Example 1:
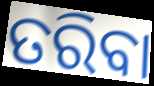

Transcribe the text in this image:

ତରିବା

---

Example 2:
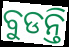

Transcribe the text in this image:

ବୁଡନ୍ତି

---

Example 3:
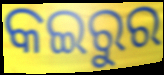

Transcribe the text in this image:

କଇରୁର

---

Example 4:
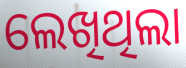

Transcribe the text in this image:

ଲେଖିଥିଲା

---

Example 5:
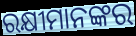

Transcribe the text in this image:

ରକ୍ଷୀମାନଙ୍କର